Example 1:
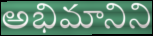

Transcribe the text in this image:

అభిమానిని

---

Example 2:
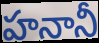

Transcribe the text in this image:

హనానీ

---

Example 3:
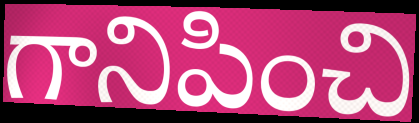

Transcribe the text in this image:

గానిపించి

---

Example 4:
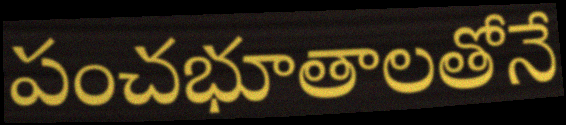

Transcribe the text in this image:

పంచభూతాలతోనే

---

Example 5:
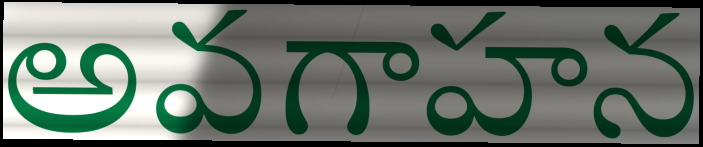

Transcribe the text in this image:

అవగాహన